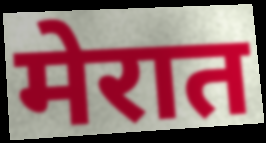
मेरात